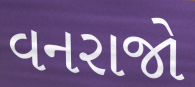
વનરાજો